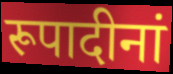
रूपादीनां